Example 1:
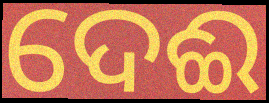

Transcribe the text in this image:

ଦେଈ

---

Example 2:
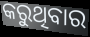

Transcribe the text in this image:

କରୁଥିବାର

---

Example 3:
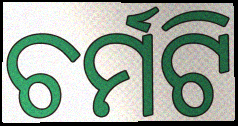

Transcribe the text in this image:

ଚର୍ମଟି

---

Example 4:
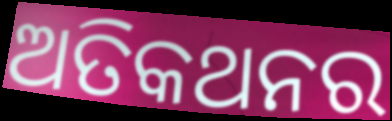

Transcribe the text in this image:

ଅତିକଥନର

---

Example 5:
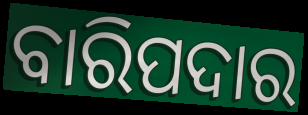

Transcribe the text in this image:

ବାରିପଦାର